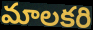
మాలకరి